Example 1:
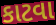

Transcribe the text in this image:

કાટવા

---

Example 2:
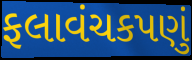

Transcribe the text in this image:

ફલાવંચકપણું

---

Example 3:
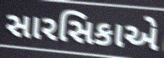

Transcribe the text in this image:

સારસિકાએ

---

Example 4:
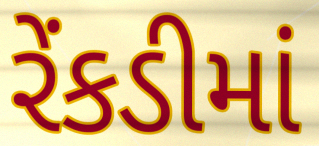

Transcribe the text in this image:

રેંકડીમાં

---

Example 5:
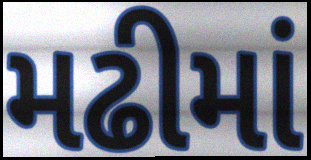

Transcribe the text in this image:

મઢીમાં